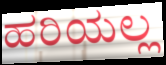
ಹರಿಯಲ್ಲ